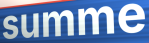
summe